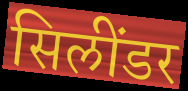
सिलींडर